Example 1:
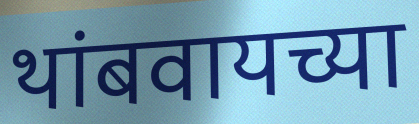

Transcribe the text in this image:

थांबवायच्या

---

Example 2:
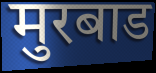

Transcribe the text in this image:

मुरबाड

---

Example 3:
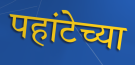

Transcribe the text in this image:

पहांटेच्या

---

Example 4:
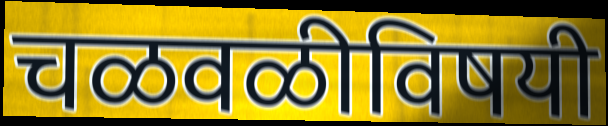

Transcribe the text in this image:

चळवळीविषयी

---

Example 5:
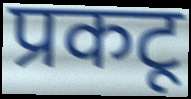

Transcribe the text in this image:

प्रकटू